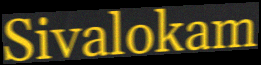
Sivalokam